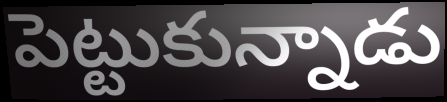
పెట్టుకున్నాడు